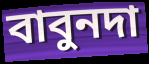
বাবুনদা